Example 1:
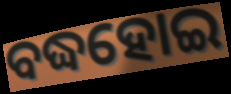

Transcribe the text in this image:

ବଦ୍ଧହୋଇ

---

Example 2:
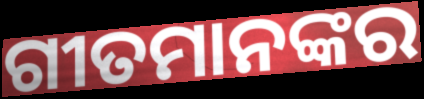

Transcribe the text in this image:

ଗୀତମାନଙ୍କର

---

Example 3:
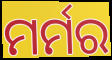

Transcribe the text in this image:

ମର୍ମର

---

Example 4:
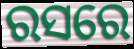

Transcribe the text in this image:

ରସରେ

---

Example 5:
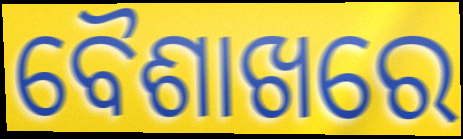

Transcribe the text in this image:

ବୈଶାଖରେ